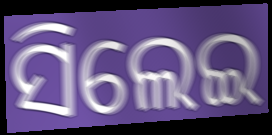
ସିଲେଇ